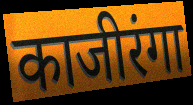
काजीरंगा